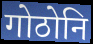
गोठोनि